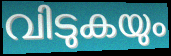
വിടുകയും